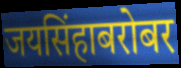
जयसिंहाबरोबर